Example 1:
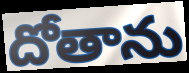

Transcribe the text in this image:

దోతాను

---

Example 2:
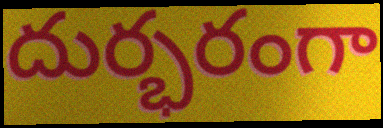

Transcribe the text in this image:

దుర్భరంగా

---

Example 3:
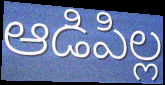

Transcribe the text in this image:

ఆడిపిల్ల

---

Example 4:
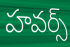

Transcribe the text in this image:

హవర్స్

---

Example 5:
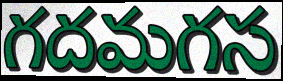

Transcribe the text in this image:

గదమగస